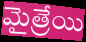
మైత్రేయి